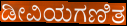
ಡೀವಿಯಗಣಿತ